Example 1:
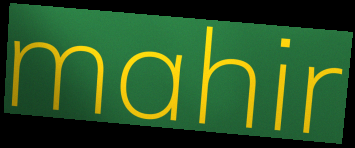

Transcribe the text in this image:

mahir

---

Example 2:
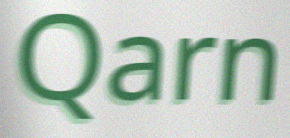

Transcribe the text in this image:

Qarn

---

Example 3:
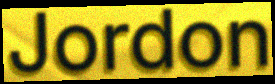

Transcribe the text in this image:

Jordon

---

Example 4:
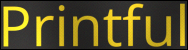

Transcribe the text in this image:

Printful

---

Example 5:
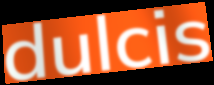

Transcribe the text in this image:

dulcis